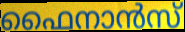
ഫൈനാൻസ്